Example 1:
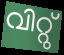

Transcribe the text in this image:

വിറ്റു്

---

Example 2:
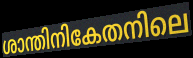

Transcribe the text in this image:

ശാന്തിനികേതനിലെ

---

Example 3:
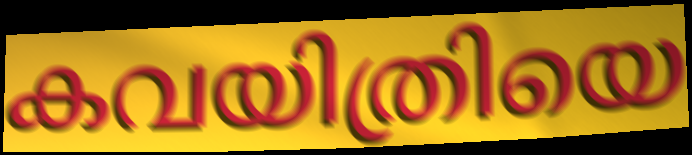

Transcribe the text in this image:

കവയിത്രിയെ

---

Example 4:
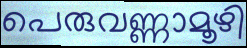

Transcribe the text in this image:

പെരുവണ്ണാമൂഴി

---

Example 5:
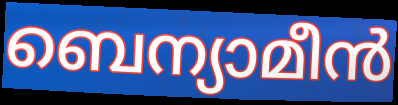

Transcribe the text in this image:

ബെന്യാമീൻ